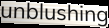
unblushing